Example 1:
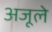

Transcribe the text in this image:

अजूले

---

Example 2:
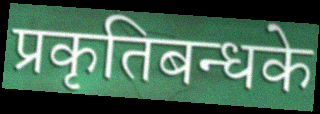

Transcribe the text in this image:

प्रकृतिबन्धके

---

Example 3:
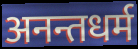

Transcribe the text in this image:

अनन्तधर्म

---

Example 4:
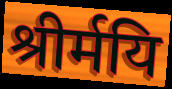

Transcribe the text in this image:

श्रीर्मयि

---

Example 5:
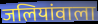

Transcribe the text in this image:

जलियांवाला